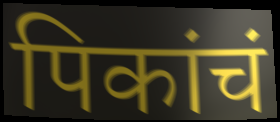
पिकांचं